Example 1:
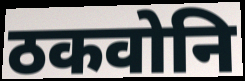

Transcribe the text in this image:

ठकवोनि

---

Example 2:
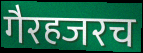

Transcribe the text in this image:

गैरहजरच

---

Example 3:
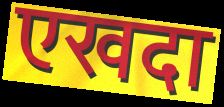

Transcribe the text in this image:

एखदा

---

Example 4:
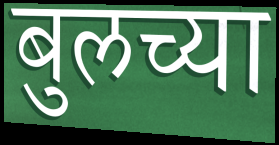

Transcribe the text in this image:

बुलच्या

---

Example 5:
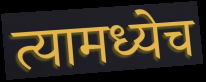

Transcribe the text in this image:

त्यामध्येच